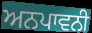
ਅਨਪਾਵਨੀ